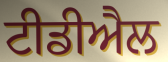
ਟੀਡੀਐਲ